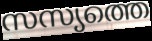
സസ്യത്തെ